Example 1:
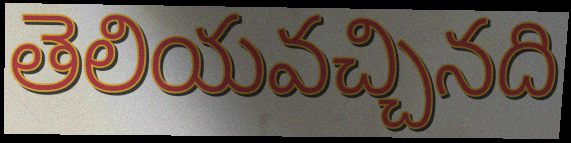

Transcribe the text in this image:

తెలియవచ్చినది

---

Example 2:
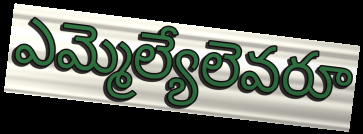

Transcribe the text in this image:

ఎమ్మెల్యేలెవరూ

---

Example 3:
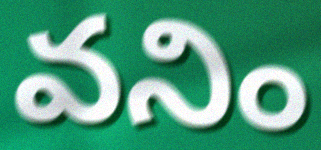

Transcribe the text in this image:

వనిం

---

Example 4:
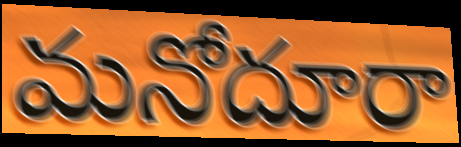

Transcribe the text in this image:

మనోదూరా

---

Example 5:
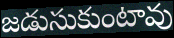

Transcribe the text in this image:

జడుసుకుంటావు